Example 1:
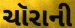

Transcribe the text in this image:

ચૉરાની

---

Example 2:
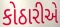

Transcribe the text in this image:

કોઠારીએ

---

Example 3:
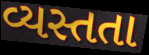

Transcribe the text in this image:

વ્યસ્તતા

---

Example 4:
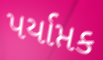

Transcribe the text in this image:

પર્યાપ્તક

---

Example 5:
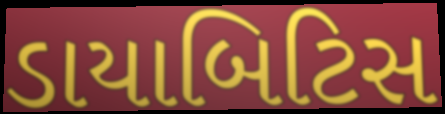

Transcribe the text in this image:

ડાયાબિટિસ